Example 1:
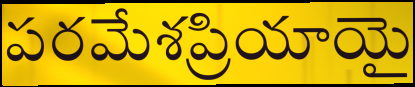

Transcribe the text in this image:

పరమేశప్రియాయై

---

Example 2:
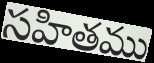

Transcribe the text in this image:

సహితము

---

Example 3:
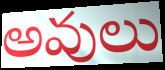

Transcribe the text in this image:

అవులు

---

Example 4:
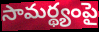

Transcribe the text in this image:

సామర్థ్యంపై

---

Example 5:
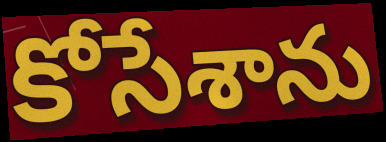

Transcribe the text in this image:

కోసేశాను